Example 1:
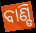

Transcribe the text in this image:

ବାଣ୍ଡି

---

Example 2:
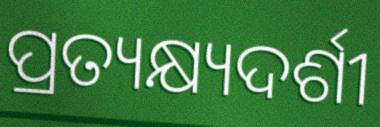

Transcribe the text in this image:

ପ୍ରତ୍ୟକ୍ଷ୍ୟଦର୍ଶୀ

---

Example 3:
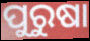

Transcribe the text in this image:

ପୁରୁଷା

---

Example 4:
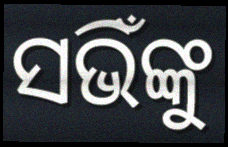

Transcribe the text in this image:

ସଭିଁଙ୍କୁ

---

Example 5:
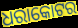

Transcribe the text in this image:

ଧରାକୋଟର